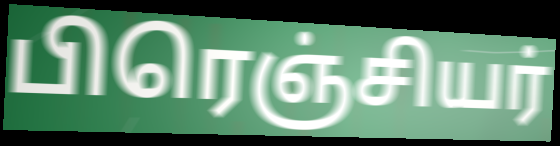
பிரெஞ்சியர்